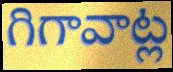
గిగావాట్ల